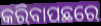
କରିବାପଛରେ